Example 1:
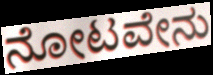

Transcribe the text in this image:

ನೋಟವೇನು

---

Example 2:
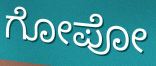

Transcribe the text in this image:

ಗೋಪೋ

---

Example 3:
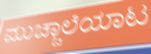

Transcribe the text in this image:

ಮುಚ್ಚಾಲೆಯಾಟ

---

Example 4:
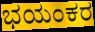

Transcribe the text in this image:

ಭಯಂಕರ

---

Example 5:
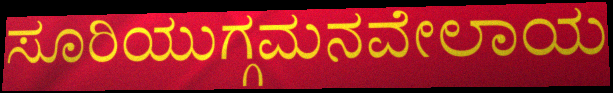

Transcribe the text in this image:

ಸೂರಿಯುಗ್ಗಮನವೇಲಾಯ